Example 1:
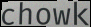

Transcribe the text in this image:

chowk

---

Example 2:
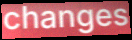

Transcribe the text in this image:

changes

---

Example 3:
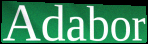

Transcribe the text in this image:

Adabor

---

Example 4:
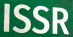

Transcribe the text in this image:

ISSR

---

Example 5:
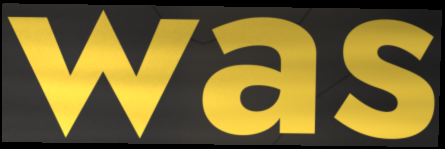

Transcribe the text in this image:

was